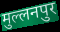
मुल्लनपुर